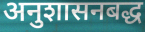
अनुशासनबद्ध